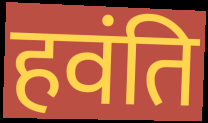
हवंति